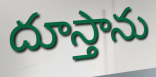
దూస్తాను